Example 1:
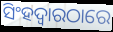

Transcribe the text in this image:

ସିଂହଦ୍ୱାରଠାରେ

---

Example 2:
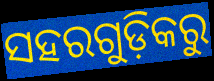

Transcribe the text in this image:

ସହରଗୁଡ଼ିକରୁ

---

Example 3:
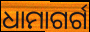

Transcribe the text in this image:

ଧାମାଗର୍ଗ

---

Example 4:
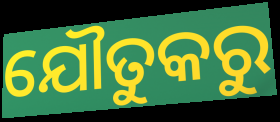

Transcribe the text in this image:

ଯୌତୁକରୁ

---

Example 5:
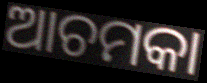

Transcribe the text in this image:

ଆଚମକା